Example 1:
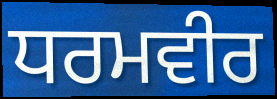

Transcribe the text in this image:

ਧਰਮਵੀਰ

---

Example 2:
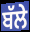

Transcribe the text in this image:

ਬੱਲੇ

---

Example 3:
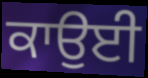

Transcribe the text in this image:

ਕਾਉਈ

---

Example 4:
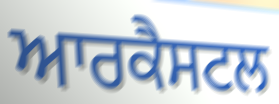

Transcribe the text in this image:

ਆਰਕੈਸਟਲ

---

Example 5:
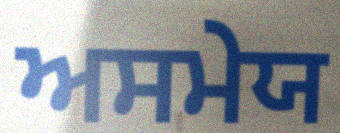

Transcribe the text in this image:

ਅਸਮੇਯ